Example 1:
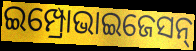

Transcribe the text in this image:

ଇମ୍ପ୍ରୋଭାଇଜେସନ୍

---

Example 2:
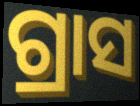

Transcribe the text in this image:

ଗ୍ରାସ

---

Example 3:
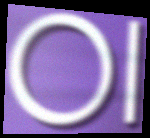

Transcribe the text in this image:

ଠା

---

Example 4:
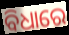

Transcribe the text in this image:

ବିଧାରେ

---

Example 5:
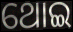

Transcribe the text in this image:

ଥୋଇ